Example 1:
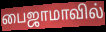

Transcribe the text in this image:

பைஜாமாவில்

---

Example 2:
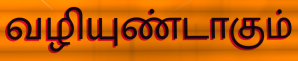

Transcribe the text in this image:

வழியுண்டாகும்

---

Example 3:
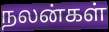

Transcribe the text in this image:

நலன்கள்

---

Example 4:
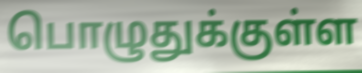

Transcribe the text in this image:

பொழுதுக்குள்ள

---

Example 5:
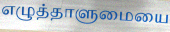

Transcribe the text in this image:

எழுத்தாளுமையை